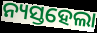
ନ୍ୟସ୍ତହେଲା